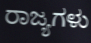
ರಾಜ್ಯಗಳು